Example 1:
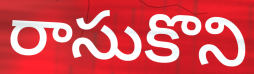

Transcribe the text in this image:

రాసుకొని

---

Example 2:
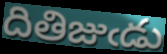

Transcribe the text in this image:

దితిజుఁడు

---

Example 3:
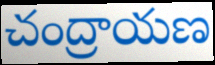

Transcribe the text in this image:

చంద్రాయణ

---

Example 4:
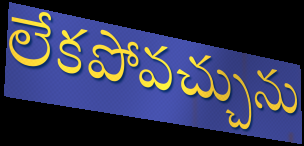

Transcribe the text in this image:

లేకపోవచ్చును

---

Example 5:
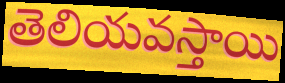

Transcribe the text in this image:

తెలియవస్తాయి